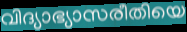
വിദ്യാഭ്യാസരീതിയെ